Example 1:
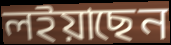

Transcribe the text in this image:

লইয়াছেন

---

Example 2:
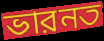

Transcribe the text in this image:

ভারনত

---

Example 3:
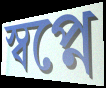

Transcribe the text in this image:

স্বপ্নে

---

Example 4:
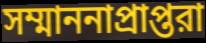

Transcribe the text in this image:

সম্মাননাপ্রাপ্তরা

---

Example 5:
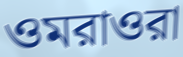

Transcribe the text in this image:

ওমরাওরা